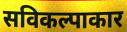
सविकल्पाकार